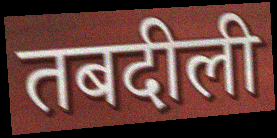
तबदीली